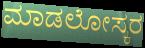
ಮಾಡಲೋಸ್ಕರ